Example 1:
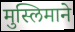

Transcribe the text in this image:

मुस्लिमाने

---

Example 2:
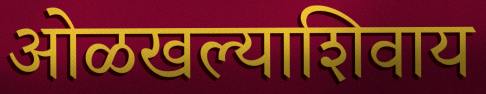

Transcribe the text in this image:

ओळखल्याशिवाय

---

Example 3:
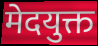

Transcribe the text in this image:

मेदयुक्त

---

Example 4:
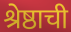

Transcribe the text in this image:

श्रेष्ठाची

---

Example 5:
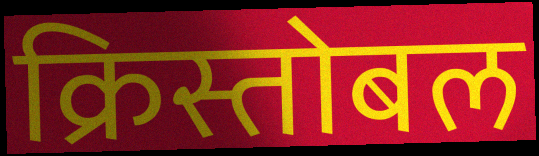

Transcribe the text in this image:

क्रिस्तोबल